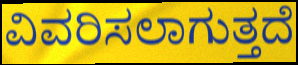
ವಿವರಿಸಲಾಗುತ್ತದೆ